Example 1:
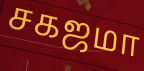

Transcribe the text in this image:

சகஜமா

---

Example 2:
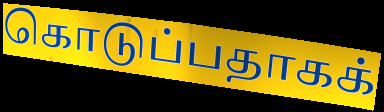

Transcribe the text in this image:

கொடுப்பதாகக்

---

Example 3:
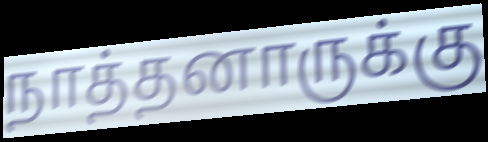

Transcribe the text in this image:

நாத்தனாருக்கு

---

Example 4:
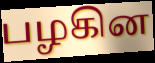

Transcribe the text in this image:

பழகின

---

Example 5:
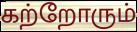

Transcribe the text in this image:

கற்றோரும்